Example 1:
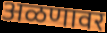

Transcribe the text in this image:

अळणावर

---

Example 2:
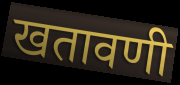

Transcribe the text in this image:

खतावणी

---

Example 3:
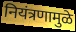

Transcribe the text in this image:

नियंत्रणामुळे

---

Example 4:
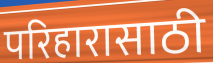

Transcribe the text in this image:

परिहारासाठी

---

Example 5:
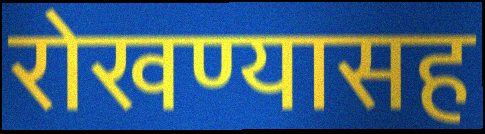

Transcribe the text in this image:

रोखण्यासह